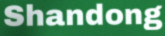
Shandong